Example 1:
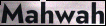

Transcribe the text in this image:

Mahwah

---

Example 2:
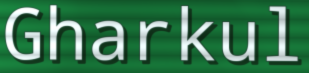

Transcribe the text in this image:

Gharkul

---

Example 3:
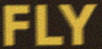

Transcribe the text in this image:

FLY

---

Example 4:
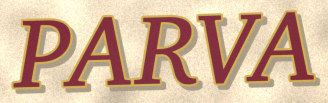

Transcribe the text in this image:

PARVA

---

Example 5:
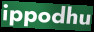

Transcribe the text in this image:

ippodhu